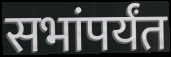
सभांपर्यंत